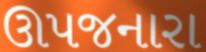
ઊપજનારા